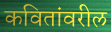
कवितांवरील